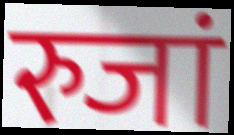
रुजां